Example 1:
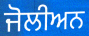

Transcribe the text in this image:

ਜੋਲੀਅਨ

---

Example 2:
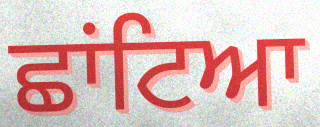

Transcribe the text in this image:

ਛਾਂਟਿਆ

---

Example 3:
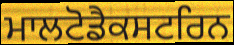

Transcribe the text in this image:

ਮਾਲਟੋਡੈਕਸਟਰਿਨ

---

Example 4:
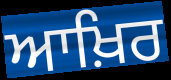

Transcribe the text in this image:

ਆਖ਼ਿਰ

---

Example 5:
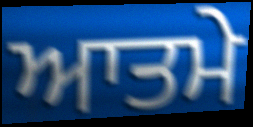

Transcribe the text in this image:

ਆਤਮੇ